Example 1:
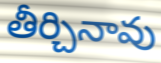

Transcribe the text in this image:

తీర్చినావు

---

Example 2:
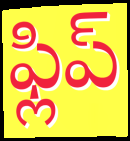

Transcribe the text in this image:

ఫ్లిప్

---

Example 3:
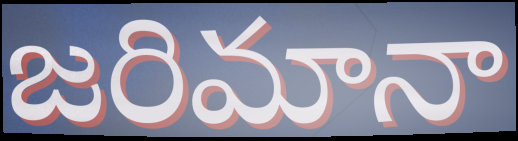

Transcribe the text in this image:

జరిమానా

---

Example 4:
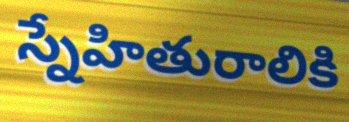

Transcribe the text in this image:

స్నేహితురాలికి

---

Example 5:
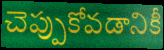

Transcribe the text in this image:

చెప్పుకోవడానికీ